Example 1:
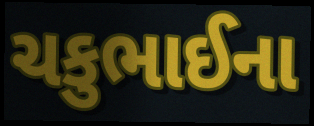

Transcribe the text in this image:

ચકુભાઈના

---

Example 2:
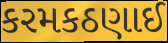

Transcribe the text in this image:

કરમકઠણાઈ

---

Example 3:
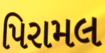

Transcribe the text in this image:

પિરામલ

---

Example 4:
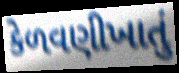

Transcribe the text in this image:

કેળવણીખાતું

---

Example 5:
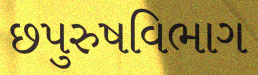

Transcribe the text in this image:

છપુરુષવિભાગ